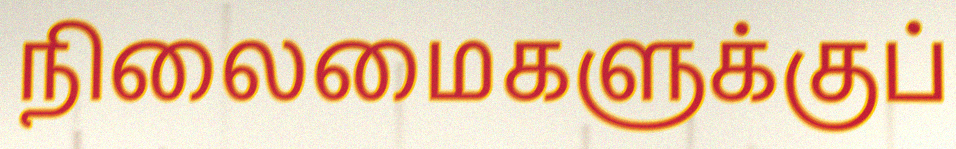
நிலைமைகளுக்குப்